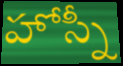
హోస్నీ